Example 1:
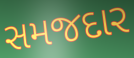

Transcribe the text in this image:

સમજદાર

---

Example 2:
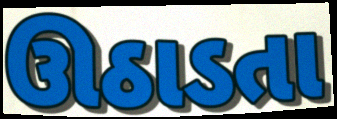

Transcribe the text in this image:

ઊઠાડતા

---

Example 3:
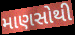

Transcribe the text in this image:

માણસોથી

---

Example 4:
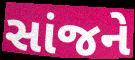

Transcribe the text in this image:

સાંજને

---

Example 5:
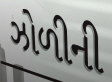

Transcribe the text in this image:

ઝોળીની